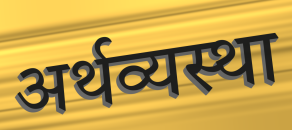
अर्थव्यस्था